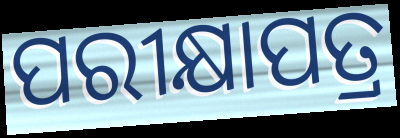
ପରୀକ୍ଷାପତ୍ର